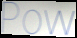
Pow